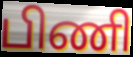
பிணி